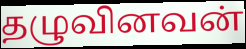
தழுவினவன்